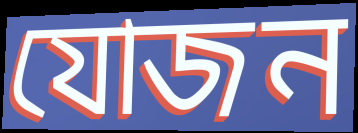
যোজন